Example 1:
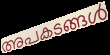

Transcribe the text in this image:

അപകടങ്ങൾ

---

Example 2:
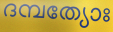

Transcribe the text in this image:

ദമ്പത്യോഃ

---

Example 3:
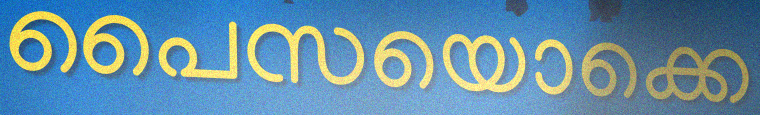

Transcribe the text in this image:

പൈസയൊക്കെ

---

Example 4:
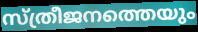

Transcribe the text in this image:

സ്ത്രീജനത്തെയും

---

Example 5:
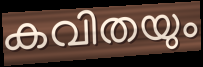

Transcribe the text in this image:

കവിതയും